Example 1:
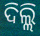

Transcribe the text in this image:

ଦିଲ୍ଲି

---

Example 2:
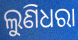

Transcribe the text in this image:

ଲୁଣିଧରା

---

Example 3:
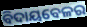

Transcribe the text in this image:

ବିଦାୟବେଳର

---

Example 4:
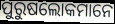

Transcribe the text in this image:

ପୁରୁଷଲୋକମାନେ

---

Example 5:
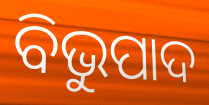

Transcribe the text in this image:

ବିଭୁପାଦ